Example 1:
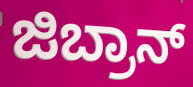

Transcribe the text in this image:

ಜಿಬ್ರಾನ್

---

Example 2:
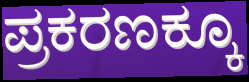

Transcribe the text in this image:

ಪ್ರಕರಣಕ್ಕೂ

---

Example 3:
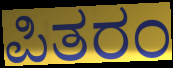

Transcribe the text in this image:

ಪಿತರಂ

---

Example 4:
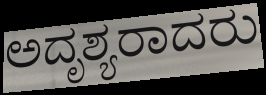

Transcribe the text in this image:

ಅದೃಶ್ಯರಾದರು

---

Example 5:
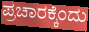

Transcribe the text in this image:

ಪ್ರಚಾರಕ್ಕೆಂದು